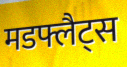
मडफ्लैट्स